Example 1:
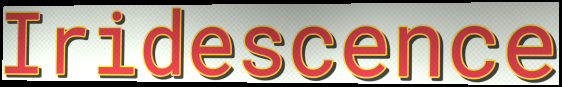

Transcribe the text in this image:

Iridescence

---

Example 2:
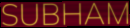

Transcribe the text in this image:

SUBHAM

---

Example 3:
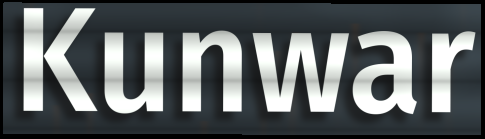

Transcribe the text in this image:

Kunwar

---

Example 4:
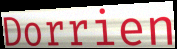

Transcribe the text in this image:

Dorrien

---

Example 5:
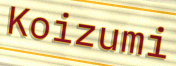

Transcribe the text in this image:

Koizumi